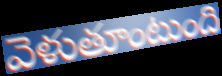
వెళుతూంటుంది